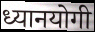
ध्यानयोगी